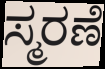
ಸ್ಮರಣೆ